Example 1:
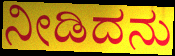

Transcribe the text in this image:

ನೀಡಿದನು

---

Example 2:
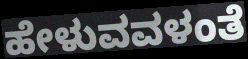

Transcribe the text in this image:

ಹೇಳುವವಳಂತೆ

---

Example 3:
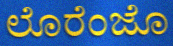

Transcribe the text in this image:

ಲೊರೆಂಜೊ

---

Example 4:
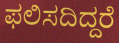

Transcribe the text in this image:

ಫಲಿಸದಿದ್ದರೆ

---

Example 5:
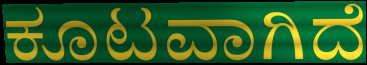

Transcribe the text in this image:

ಕೂಟವಾಗಿದೆ